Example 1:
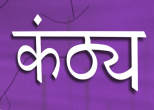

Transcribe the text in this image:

कंठ्य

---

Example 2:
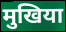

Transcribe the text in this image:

मुखिया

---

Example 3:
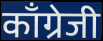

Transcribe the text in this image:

काँग्रेजी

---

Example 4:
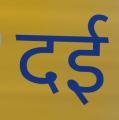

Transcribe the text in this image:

दई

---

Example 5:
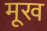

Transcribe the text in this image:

मूख